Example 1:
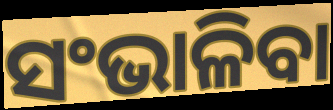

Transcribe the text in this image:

ସଂଭାଳିବା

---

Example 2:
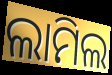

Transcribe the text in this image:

ଲାମିଲ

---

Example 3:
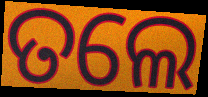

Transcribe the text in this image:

ତଲେ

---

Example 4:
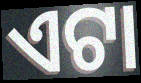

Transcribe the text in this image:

ଏଟା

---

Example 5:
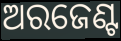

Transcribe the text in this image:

ଅରଜେଣ୍ଟ